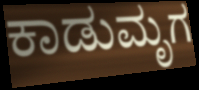
ಕಾಡುಮೃಗ